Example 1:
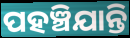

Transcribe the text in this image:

ପହଞ୍ଚିଯାନ୍ତି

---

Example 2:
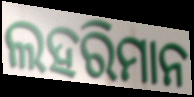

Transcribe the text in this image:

ଲହରିମାନ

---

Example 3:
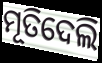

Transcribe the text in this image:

ମୂତିଦେଲି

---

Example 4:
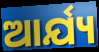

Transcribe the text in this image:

ଆର୍ଯ୍ୟ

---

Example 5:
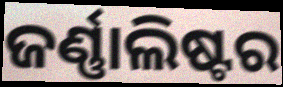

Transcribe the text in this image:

ଜର୍ଣ୍ଣାଲିଷ୍ଟର